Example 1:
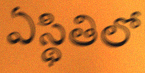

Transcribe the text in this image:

ఏస్థితిలో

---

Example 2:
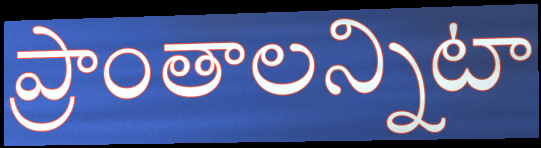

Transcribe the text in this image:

ప్రాంతాలన్నిటా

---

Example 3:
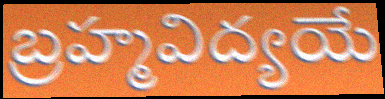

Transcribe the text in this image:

బ్రహ్మవిద్యయే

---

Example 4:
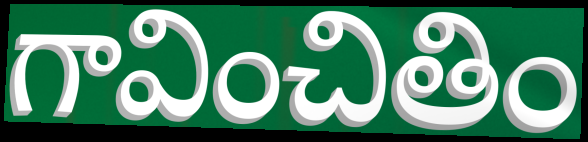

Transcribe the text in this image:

గావించితిం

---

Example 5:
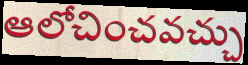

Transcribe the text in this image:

ఆలోచించవచ్చు